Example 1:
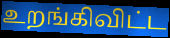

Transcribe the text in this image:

உறங்கிவிட்ட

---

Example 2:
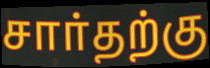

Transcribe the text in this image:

சார்தற்கு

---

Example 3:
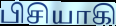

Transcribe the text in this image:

பிசியாகி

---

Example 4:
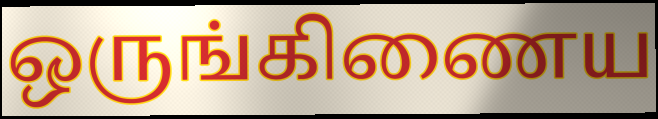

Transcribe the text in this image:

ஒருங்கிணைய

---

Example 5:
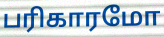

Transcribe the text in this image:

பரிகாரமோ